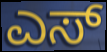
ಎಸ್